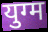
युग्म